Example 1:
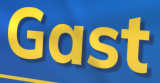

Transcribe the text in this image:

Gast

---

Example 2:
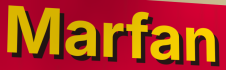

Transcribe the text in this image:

Marfan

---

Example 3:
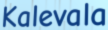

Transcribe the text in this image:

Kalevala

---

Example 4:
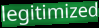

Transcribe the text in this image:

legitimized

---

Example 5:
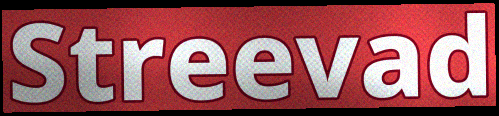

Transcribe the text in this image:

Streevad